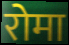
रोमा